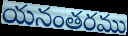
యనంతరము